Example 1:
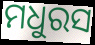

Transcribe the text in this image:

ମଧୁରସ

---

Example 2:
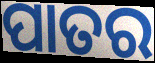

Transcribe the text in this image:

ପାତର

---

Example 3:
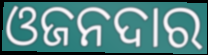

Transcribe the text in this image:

ଓଜନଦାର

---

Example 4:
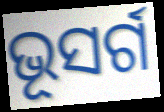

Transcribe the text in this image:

ଭୂସର୍ଗ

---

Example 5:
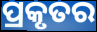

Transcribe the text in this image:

ପ୍ରକୃତର